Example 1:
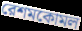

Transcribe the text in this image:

রেশমকোমল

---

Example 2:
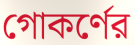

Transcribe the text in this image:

গোকর্ণের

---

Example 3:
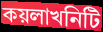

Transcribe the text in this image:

কয়লাখনিটি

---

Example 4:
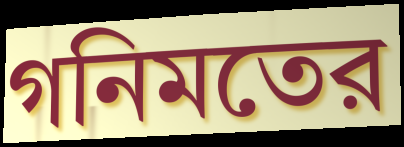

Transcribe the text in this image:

গনিমতের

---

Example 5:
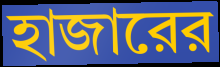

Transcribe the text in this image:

হাজারের